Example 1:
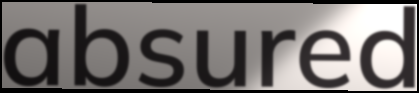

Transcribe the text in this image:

absured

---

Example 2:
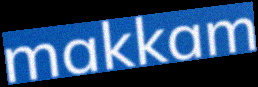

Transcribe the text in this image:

makkam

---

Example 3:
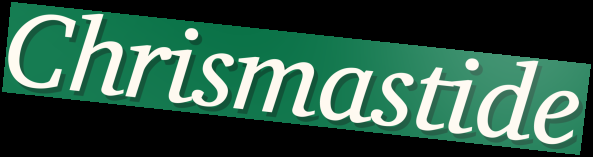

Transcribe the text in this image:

Chrismastide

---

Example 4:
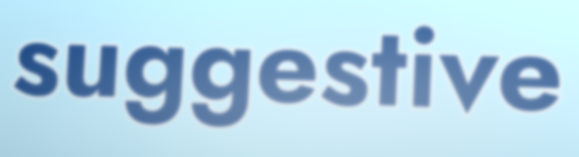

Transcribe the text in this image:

suggestive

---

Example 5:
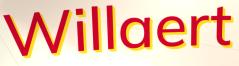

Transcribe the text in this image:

Willaert